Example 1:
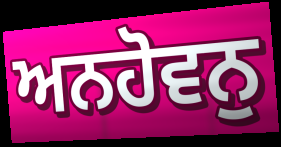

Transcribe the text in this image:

ਅਨਹੋਵਨੁ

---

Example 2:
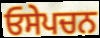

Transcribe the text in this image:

ਓਸੇਪਚਨ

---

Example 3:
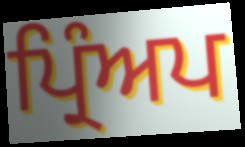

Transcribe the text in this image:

ਪ੍ਰਿੰਅਪ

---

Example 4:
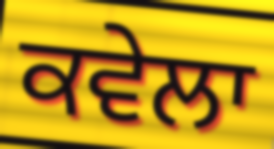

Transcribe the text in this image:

ਕਵੇਲਾ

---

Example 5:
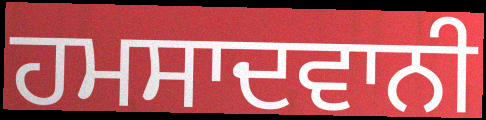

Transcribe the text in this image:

ਹਮਸਾਦਵਾਨੀ